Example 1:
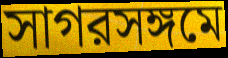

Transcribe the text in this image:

সাগরসঙ্গমে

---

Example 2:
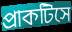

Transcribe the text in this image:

প্রাকটিসে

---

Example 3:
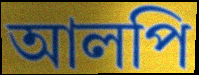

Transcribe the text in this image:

আলপি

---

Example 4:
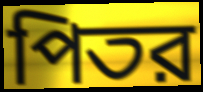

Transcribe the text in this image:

পিতর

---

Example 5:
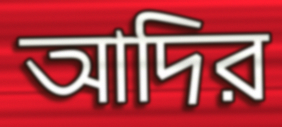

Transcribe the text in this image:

আদির